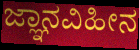
ಜ್ಞಾನವಿಹೀನ